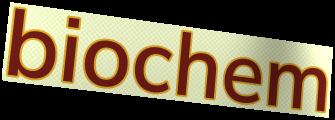
biochem